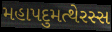
મહાપદુમત્થેરસ્સ